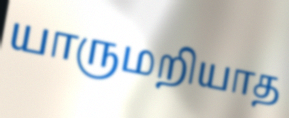
யாருமறியாத